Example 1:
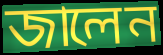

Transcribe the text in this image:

জালেন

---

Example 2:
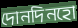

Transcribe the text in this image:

দোনদিনহো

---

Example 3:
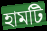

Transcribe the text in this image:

হামটি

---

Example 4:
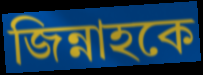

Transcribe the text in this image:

জিন্নাহকে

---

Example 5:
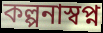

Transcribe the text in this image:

কল্পনাস্বপ্ন